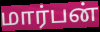
மார்பன்